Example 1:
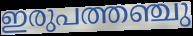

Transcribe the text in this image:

ഇരുപത്തഞ്ചു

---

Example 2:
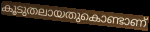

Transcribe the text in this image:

കൂടുതലായതുകൊണ്ടാണ്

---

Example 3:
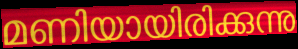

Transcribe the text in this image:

മണിയായിരിക്കുന്നു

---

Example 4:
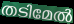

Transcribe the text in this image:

തടിമേൽ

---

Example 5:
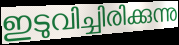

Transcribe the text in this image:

ഇടുവിച്ചിരിക്കുന്നു